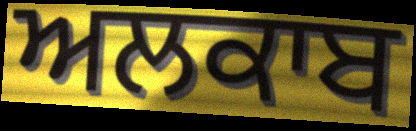
ਅਲਕਾਬ